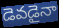
డెవడైనా